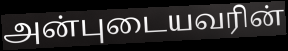
அன்புடையவரின்